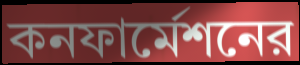
কনফার্মেশনের